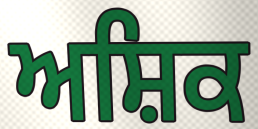
ਅਸ਼ਿਕ